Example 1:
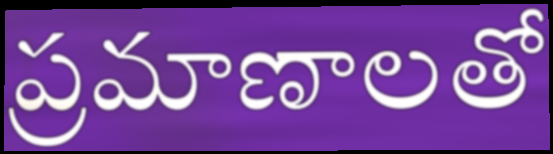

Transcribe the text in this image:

ప్రమాణాలతో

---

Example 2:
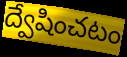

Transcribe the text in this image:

ద్వేషించటం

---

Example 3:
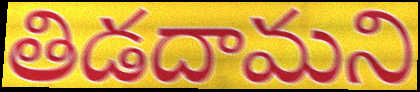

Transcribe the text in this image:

తిడదామని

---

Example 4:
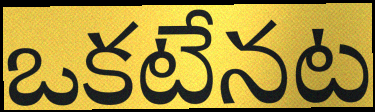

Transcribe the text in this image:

ఒకటేనట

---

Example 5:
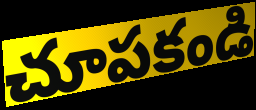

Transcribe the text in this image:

చూపకండి